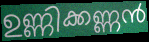
ഉണ്ണിക്കണ്ണൻ